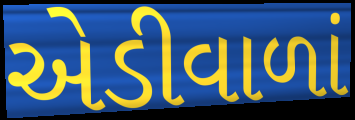
એડીવાળાં